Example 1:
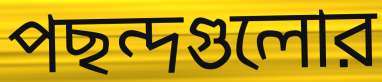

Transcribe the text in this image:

পছন্দগুলোর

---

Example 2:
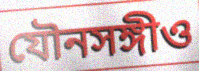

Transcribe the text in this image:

যৌনসঙ্গীও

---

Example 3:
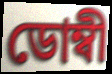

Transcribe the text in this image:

ডোম্বী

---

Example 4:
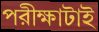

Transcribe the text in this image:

পরীক্ষাটাই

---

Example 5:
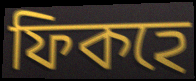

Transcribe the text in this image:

ফিকহে